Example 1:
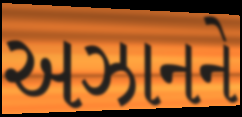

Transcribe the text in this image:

અઝાનને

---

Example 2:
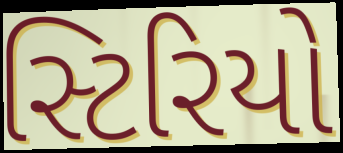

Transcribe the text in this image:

સ્ટિરિયો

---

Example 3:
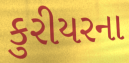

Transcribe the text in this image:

કુરીયરના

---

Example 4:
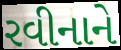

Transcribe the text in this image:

રવીનાને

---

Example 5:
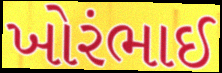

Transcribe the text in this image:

ખોરંભાઈ